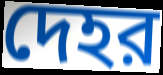
দেহর